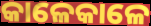
କାଳେକାଳେ